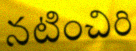
నటించిరి